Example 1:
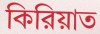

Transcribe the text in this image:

কিরিয়াত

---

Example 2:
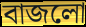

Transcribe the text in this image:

বাজলো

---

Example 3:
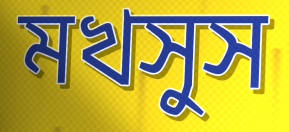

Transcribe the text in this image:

মখসুস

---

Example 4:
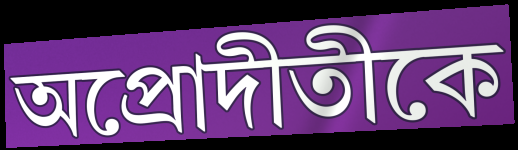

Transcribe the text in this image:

অপ্রোদীতীকে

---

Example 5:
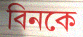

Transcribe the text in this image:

বিনকে